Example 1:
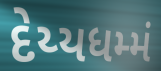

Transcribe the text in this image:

દેય્યધમ્મં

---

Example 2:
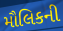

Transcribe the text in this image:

મૌલિકની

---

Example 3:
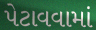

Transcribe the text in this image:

પેટાવવામાં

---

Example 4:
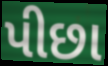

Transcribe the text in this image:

પીછા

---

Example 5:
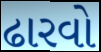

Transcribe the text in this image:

ઢારવો